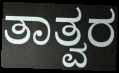
ತಾತ್ವರ